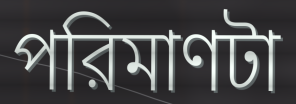
পরিমাণটা